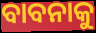
ବାବନାକୁ